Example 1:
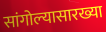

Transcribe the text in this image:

सांगोल्यासारख्या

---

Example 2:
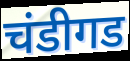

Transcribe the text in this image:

चंडीगड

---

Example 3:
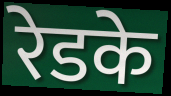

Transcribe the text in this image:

रेडके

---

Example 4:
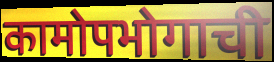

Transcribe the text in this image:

कामोपभोगाची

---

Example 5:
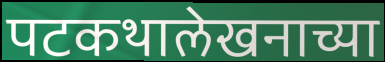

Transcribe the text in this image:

पटकथालेखनाच्या